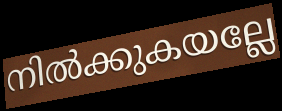
നിൽക്കുകയല്ലേ